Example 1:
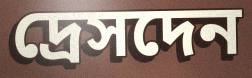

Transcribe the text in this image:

দ্রেসদেন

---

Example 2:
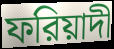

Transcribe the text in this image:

ফরিয়াদী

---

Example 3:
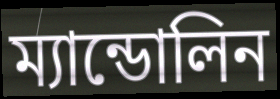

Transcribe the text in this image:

ম্যান্ডোলিন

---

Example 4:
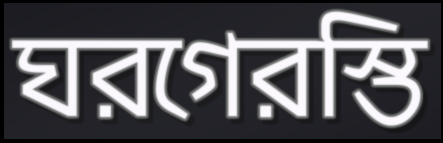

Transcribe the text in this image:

ঘরগেরস্তি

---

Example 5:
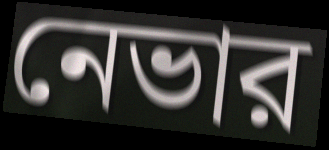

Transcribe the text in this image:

নেভার